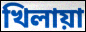
খিলায়া